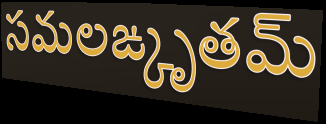
సమలఙ్కృతమ్